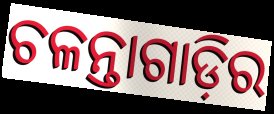
ଚଳନ୍ତାଗାଡ଼ିର